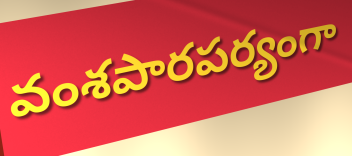
వంశపారపర్యంగా